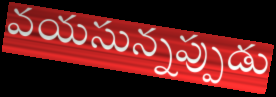
వయసున్నప్పుడు